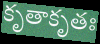
కృతాకృతః